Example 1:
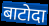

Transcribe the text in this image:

बाटोदा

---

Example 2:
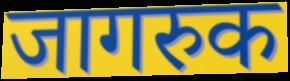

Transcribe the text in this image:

जागरुक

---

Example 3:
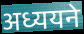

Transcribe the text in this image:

अध्ययने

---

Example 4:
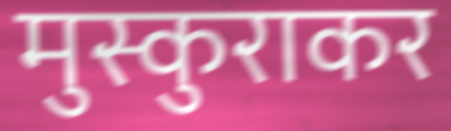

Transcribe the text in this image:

मुस्‍कुराकर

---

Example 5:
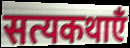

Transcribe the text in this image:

सत्यकथाएँ